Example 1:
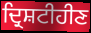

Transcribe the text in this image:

ਦ੍ਰਿਸ਼ਟੀਹੀਣ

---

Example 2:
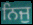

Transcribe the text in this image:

ਨਿਜੁ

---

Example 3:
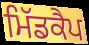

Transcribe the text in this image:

ਮਿੱਡਕੈਪ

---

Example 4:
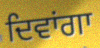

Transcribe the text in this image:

ਦਿਵਾਂਗਾ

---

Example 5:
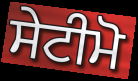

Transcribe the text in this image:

ਸੇਟੀਮੋ